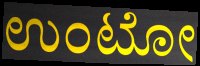
ಉಂಟೋ